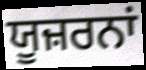
ਯੂਜ਼ਰਨਾਂ